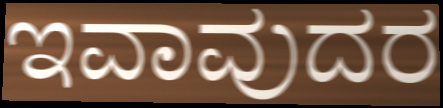
ಇವಾವುದರ